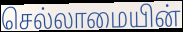
செல்லாமையின்